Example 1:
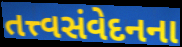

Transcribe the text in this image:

તત્ત્વસંવેદનના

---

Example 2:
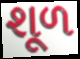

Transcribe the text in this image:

શૂળ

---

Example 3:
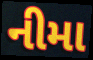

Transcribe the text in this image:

નીમા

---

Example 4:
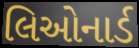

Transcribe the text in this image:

લિઓનાર્ડ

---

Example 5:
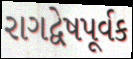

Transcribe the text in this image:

રાગદ્વેષપૂર્વક